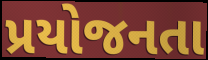
પ્રયોજનતા